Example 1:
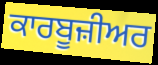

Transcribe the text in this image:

ਕਾਰਬੂਜ਼ੀਅਰ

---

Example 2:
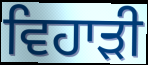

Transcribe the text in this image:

ਵਿਹਾੜੀ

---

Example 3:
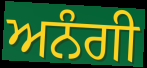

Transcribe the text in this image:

ਅਨੰਗੀ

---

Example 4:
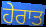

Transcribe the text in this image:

ਹੇਰਾਤ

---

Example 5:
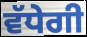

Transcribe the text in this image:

ਵੱਧੇਗੀ